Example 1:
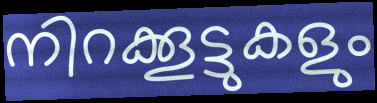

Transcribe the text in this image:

നിറക്കൂട്ടുകളും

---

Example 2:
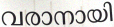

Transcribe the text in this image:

വരാനായി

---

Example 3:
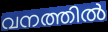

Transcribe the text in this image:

വനത്തിൽ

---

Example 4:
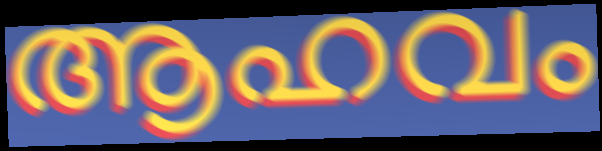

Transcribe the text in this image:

ആഹവം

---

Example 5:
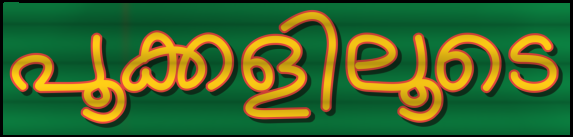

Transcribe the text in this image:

പൂക്കളിലൂടെ